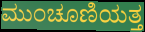
ಮುಂಚೂಣಿಯತ್ತ